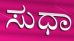
ಸುಧಾ